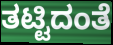
ತಟ್ಟಿದಂತೆ